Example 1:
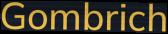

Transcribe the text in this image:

Gombrich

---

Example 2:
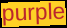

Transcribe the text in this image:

purple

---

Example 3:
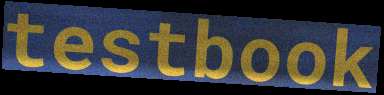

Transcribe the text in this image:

testbook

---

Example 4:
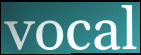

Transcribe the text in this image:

vocal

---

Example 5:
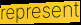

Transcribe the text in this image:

represent